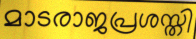
മാടരാജപ്രശസ്തി